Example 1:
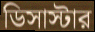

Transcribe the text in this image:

ডিসাস্টার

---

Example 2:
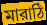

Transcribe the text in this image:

মারাঠি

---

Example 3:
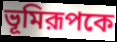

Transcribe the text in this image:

ভূমিরূপকে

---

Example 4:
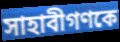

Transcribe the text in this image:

সাহাবীগণকে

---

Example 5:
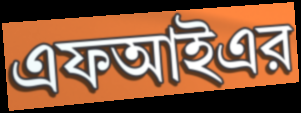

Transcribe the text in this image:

এফআইএর